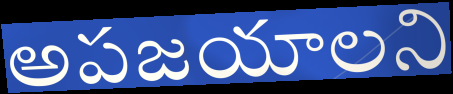
అపజయాలని